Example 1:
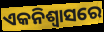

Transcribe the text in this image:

ଏକନିଶ୍ୱାସରେ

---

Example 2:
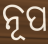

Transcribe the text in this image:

ନୂପ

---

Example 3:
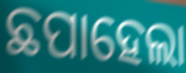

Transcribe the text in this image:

ଛପାହେଲା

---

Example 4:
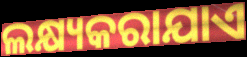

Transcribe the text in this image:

ଲକ୍ଷ୍ୟକରାଯାଏ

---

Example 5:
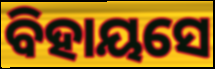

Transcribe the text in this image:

ବିହାୟସେ